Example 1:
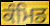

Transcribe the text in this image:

ਕੰਮਿਡ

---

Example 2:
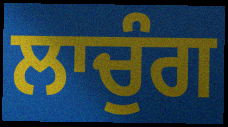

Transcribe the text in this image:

ਲਾਚੁੰਗ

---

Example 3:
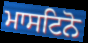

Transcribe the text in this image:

ਮਾਸਟਿਨੋ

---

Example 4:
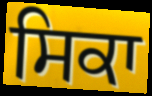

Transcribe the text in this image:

ਸਿਕਾ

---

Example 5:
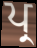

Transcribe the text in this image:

ਪ੍ਰ